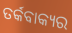
ତର୍କବାକ୍ୟର